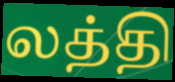
லத்தி